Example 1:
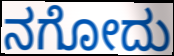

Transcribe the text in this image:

ನಗೋದು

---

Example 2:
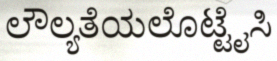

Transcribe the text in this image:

ಲೌಲ್ಯತೆಯಲೊಟ್ಟೈಸಿ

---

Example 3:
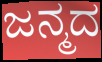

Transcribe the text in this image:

ಜನ್ಮದ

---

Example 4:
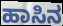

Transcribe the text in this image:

ಹಾಸಿನ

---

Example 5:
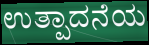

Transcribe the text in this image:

ಉತ್ಪಾದನೆಯ